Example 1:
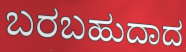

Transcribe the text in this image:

ಬರಬಹುದಾದ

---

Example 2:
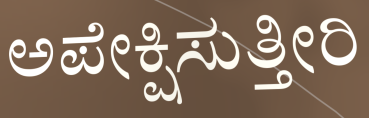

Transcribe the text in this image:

ಅಪೇಕ್ಷಿಸುತ್ತೀರಿ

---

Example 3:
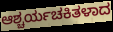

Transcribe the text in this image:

ಆಶ್ಚರ್ಯಚಕಿತಳಾದ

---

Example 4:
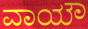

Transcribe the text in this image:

ವಾಯೌ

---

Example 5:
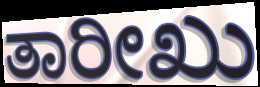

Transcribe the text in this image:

ತಾರೀಖು